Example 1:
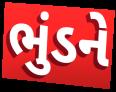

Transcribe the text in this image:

ભુંડને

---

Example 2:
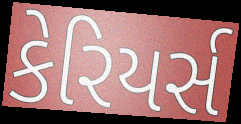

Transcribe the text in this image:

કેરિયર્સ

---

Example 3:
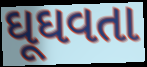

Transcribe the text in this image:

ઘૂઘવતા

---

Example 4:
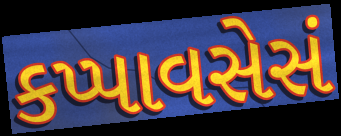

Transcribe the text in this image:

કપ્પાવસેસં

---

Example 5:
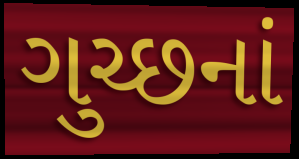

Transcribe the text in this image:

ગુચ્છનાં